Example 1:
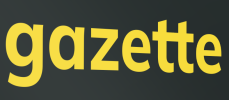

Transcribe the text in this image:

gazette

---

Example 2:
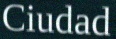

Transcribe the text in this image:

Ciudad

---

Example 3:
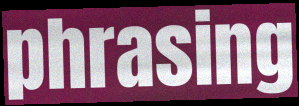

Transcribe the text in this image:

phrasing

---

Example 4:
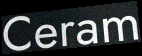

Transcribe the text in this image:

Ceram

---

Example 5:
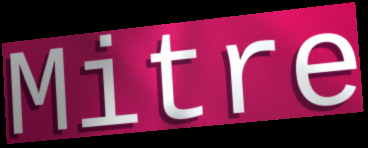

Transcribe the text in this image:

Mitre